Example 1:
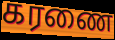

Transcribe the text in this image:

கரணை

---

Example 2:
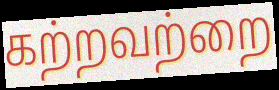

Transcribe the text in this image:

கற்றவற்றை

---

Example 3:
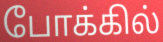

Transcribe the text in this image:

போக்கில்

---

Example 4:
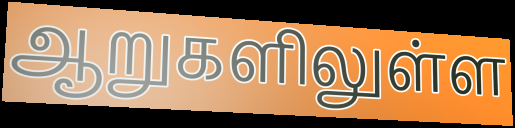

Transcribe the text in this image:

ஆறுகளிலுள்ள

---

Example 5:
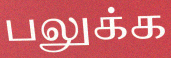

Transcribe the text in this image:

பலுக்க